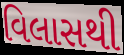
વિલાસથી